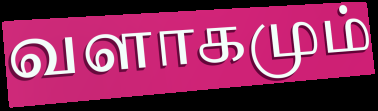
வளாகமும்